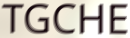
TGCHE